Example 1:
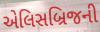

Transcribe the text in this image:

એલિસબ્રિજની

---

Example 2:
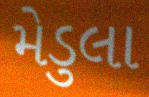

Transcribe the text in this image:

મેડુલા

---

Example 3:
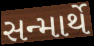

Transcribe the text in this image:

સન્માર્થે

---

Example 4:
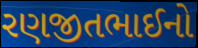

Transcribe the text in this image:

રણજીતભાઈનો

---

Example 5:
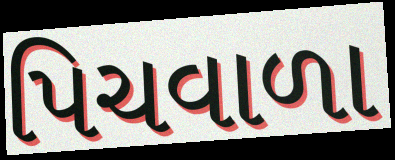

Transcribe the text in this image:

પિચવાળા